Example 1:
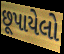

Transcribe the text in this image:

છૂપાયેલો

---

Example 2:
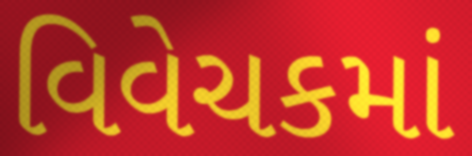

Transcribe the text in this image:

વિવેચકમાં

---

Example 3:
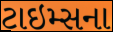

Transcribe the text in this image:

ટાઇમ્સના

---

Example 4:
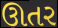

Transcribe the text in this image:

ઊતર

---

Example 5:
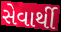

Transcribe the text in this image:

સેવાર્થી